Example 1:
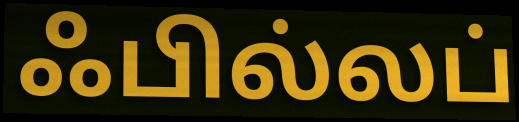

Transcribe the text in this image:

ஃபில்லப்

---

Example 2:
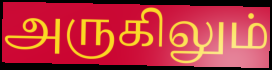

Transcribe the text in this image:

அருகிலும்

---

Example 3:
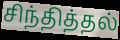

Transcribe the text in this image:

சிந்தித்தல்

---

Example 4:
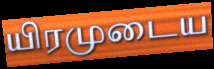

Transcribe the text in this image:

யிரமுடைய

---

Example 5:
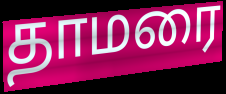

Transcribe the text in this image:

தாமரை